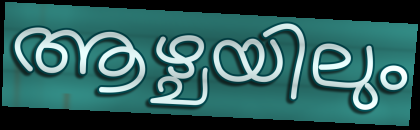
ആഴ്ചയിലും